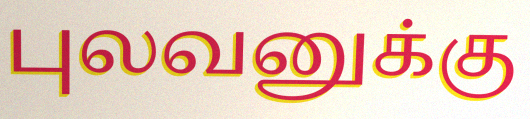
புலவனுக்கு